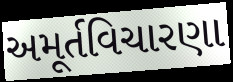
અમૂર્તવિચારણા